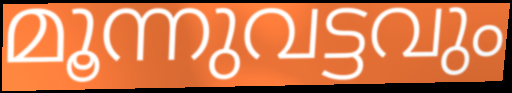
മൂന്നുവട്ടവും